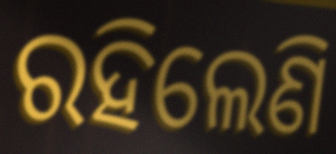
ରହିଲେଣି